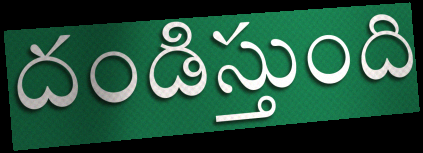
దండిస్తుంది